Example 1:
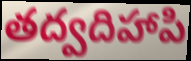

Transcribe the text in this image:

తద్వదిహాపి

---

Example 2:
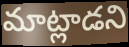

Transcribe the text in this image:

మాట్లాడని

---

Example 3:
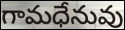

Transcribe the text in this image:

గామధేనువు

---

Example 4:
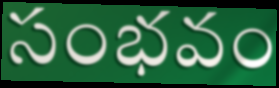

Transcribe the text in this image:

సంభవం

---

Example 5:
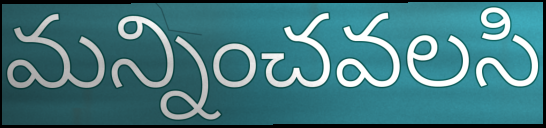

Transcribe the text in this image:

మన్నించవలసి